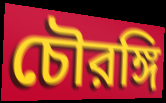
চৌরঙ্গি